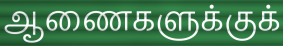
ஆணைகளுக்குக்